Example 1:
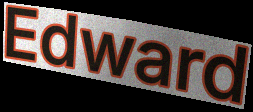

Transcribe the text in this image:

Edward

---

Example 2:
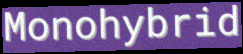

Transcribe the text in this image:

Monohybrid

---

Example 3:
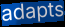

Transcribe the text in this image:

adapts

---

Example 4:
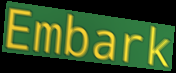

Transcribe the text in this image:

Embark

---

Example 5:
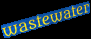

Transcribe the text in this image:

wastewater